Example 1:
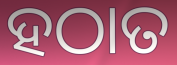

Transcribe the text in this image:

ହଠାତ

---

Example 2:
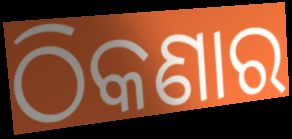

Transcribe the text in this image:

ଠିକଣାର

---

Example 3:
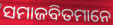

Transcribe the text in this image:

ସମାଜବିତମାନେ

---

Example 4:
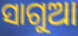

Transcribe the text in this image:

ସାଗୁଆ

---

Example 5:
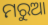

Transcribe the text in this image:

ମରୁଆ